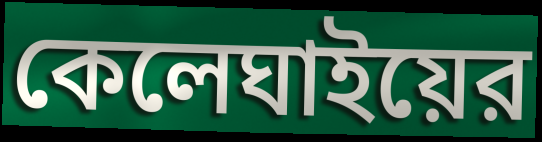
কেলেঘাইয়ের